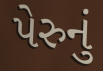
પેરુનું